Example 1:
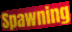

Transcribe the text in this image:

Spawning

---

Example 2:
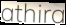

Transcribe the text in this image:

athira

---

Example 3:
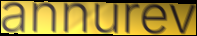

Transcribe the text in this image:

annurev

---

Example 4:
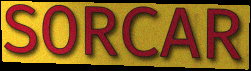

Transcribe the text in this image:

SORCAR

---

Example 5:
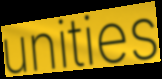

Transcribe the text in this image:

unities